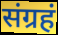
संग्रहं